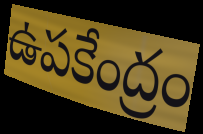
ఉపకేంద్రం